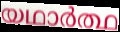
യഥാർത്ഥ